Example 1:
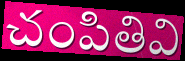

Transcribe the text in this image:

చంపితివి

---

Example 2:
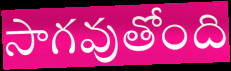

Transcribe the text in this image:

సాగవుతోంది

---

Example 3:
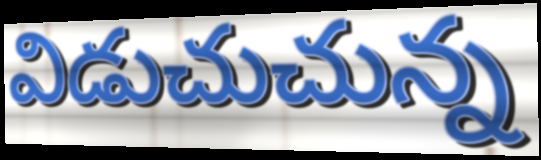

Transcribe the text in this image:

విడుచుచున్న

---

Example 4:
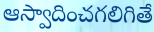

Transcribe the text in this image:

ఆస్వాదించగలిగితే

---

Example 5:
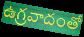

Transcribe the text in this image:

ఉగ్రవాదంతో